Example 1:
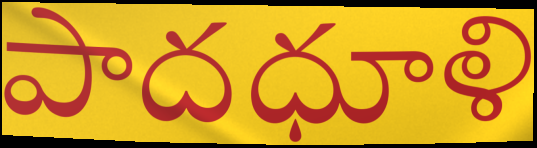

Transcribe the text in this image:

పాదధూళి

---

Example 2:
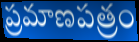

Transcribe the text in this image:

ప్రమాణపత్రం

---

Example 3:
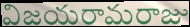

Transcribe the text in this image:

విజయరామరాజు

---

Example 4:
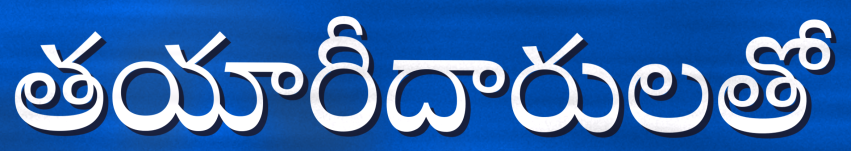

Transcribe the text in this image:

తయారీదారులతో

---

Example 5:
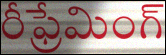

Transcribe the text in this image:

రీఫ్రేమింగ్